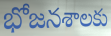
భోజనశాలకు